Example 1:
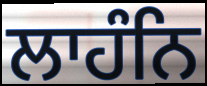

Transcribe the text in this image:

ਲਾਹੰਨਿ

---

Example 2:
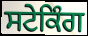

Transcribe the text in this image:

ਸਟੇਕਿੰਗ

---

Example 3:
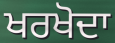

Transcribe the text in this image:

ਖਰਖੋਦਾ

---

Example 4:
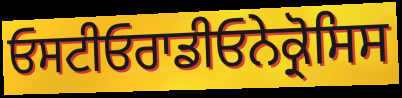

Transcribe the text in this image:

ਓਸਟੀਓਰਾਡੀਓਨੇਕ੍ਰੋਸਿਸ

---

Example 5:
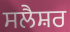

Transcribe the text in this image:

ਸਲੈਸ਼ਰ